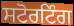
ਸਟੋਰਟਿੰਗ